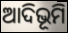
ଆଦିଭୂମି